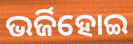
ଭର୍ଜିହୋଇ